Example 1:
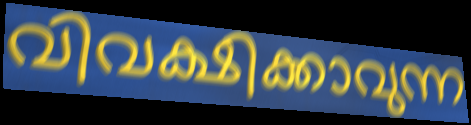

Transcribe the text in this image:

വിവക്ഷിക്കാവുന്ന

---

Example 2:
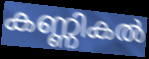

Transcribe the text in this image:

കണ്ണികൽ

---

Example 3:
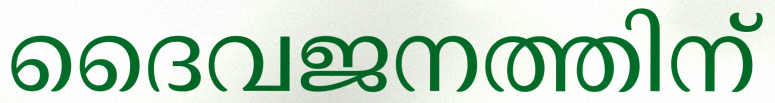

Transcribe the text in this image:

ദൈവജനത്തിന്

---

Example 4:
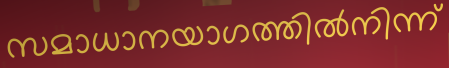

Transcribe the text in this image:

സമാധാനയാഗത്തിൽനിന്ന്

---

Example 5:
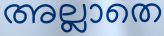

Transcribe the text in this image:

അല്ലാതെ